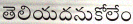
తెలియదనుకోలేం